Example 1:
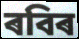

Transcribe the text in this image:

ৰবিৰ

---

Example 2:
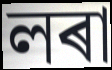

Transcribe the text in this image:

লৰা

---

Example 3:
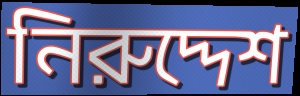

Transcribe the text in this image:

নিৰুদ্দেশ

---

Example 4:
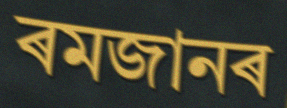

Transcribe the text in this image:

ৰমজানৰ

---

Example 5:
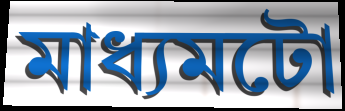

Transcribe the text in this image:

মাধ্যমটো